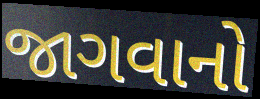
જાગવાનો